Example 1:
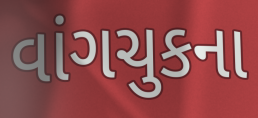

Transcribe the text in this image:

વાંગચુકના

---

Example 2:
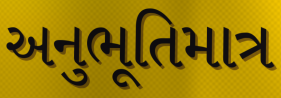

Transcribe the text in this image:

અનુભૂતિમાત્ર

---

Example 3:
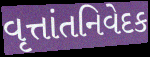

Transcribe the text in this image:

વૃત્તાંતનિવેદક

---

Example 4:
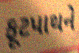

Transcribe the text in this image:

ફૂટપાથને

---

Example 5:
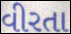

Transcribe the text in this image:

વીરતા